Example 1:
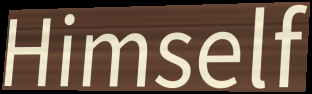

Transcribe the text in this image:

Himself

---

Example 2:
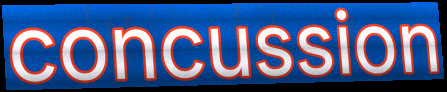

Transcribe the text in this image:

concussion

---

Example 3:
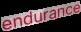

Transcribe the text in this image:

endurance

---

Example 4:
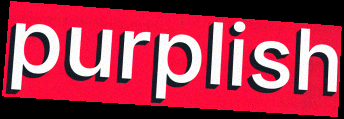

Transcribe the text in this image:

purplish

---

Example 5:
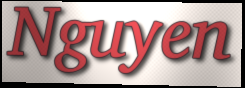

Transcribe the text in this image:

Nguyen